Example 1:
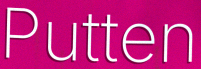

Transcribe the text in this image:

Putten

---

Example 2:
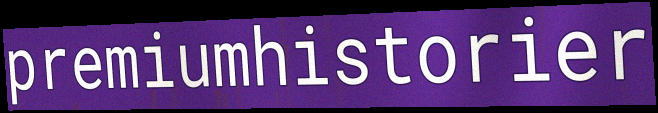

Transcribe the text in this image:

premiumhistorier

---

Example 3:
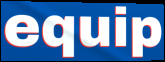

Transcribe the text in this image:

equip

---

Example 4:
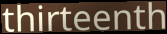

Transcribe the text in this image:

thirteenth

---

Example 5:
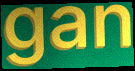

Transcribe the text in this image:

gan